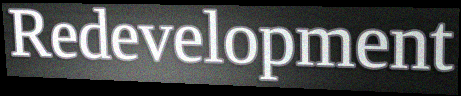
Redevelopment